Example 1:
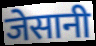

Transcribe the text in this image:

जेसानी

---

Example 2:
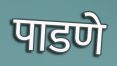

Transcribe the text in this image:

पाडणे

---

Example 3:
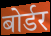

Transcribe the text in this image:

बोर्डर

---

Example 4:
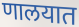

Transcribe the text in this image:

णालयात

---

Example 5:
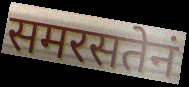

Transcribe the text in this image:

समरसतेनं